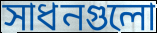
সাধনগুলো